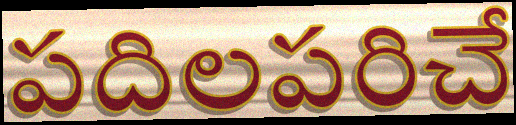
పదిలపరిచే